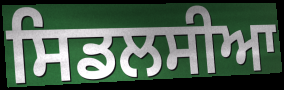
ਸਿਡਲਸੀਆ